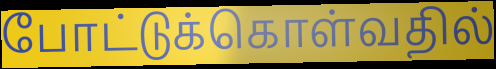
போட்டுக்கொள்வதில்